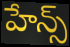
హేన్స్